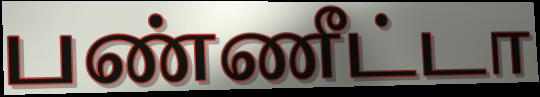
பண்ணீட்டா